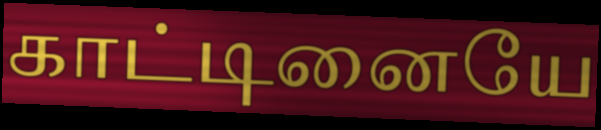
காட்டினையே